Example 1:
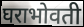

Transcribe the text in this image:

घराभोवती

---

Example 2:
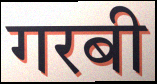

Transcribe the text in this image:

गरबी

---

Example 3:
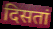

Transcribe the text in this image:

दिसतां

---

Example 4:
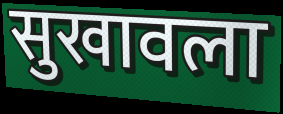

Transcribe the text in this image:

सुखावला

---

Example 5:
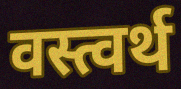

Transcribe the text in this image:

वस्त्वर्थ